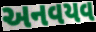
અનવયવ